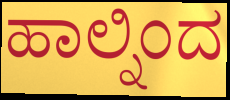
ಹಾಲ್ನಿಂದ